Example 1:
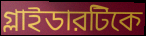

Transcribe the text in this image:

গ্লাইডারটিকে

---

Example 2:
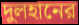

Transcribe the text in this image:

দুলহানের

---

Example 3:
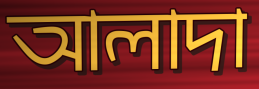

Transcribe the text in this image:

আলাদা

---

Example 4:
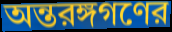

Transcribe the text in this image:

অন্তরঙ্গগণের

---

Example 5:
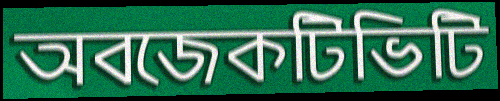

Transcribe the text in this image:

অবজেকটিভিটি